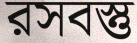
রসবস্তু